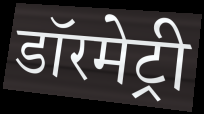
डॉरमेट्री